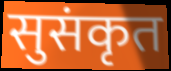
सुसंकृत